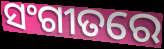
ସଂଗୀତରେ